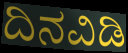
ದಿನವಿಡಿ